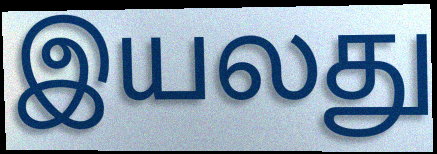
இயலது